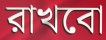
রাখবো